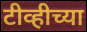
टीव्हीच्या